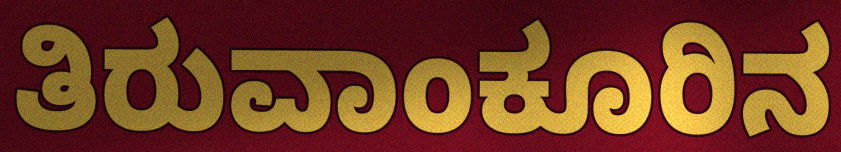
ತಿರುವಾಂಕೂರಿನ